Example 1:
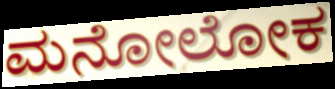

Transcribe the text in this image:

ಮನೋಲೋಕ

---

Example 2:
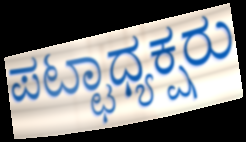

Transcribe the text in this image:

ಪಟ್ಟಾಧ್ಯಕ್ಷರು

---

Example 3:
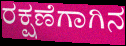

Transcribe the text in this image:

ರಕ್ಷಣೆಗಾಗಿನ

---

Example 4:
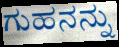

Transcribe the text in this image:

ಗುಹನನ್ನು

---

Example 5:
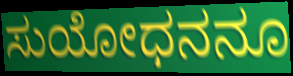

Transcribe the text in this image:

ಸುಯೋಧನನೂ